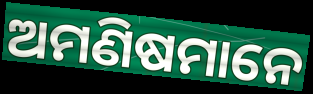
ଅମଣିଷମାନେ